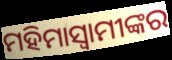
ମହିମାସ୍ୱାମୀଙ୍କର